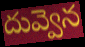
దువ్వెన